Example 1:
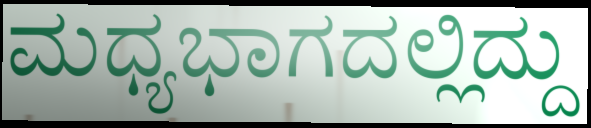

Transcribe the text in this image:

ಮಧ್ಯಭಾಗದಲ್ಲಿದ್ದು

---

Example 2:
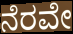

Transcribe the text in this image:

ನೆರವೇ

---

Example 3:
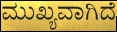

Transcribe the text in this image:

ಮುಖ್ಯವಾಗಿದೆ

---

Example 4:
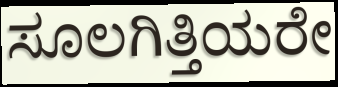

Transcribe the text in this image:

ಸೂಲಗಿತ್ತಿಯರೇ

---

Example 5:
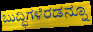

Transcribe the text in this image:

ಬುದ್ಧಿಗಳೆರಡನ್ನೂ